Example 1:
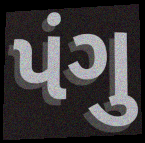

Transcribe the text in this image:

પંગુ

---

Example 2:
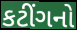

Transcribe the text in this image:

કટીંગનો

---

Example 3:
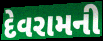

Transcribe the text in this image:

દેવરામની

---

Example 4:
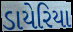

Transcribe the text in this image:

ડાયેરિયા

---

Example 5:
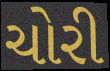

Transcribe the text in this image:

ચોરી